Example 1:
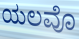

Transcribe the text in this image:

ಯಲವೊ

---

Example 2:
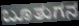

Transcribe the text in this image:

ಬೂತುಗನ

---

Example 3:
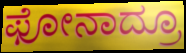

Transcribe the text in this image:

ಫೋನಾದ್ರೂ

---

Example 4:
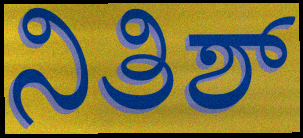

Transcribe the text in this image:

ನಿತಿಶ್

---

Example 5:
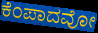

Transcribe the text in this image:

ಕೆಂಪಾದವೋ